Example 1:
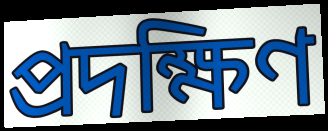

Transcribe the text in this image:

প্ৰদক্ষিণ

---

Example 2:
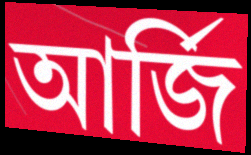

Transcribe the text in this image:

আৰ্জি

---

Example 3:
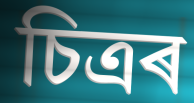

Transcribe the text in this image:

চিত্ৰৰ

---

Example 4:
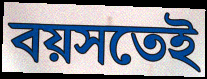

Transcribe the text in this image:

বয়সতেই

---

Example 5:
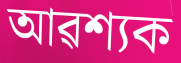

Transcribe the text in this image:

আৱশ্যক